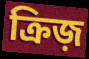
ক্রিজ়